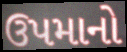
ઉપમાનો